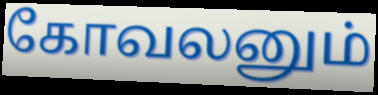
கோவலனும்